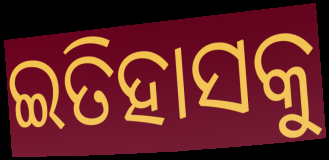
ଇତିହାସକୁ